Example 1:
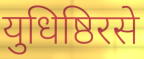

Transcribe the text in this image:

युधिष्ठिरसे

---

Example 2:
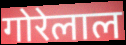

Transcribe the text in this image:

गोरेलाल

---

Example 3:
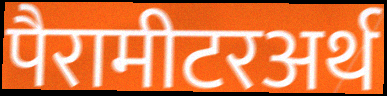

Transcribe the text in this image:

पैरामीटरअर्थ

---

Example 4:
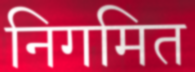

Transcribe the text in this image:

निगमित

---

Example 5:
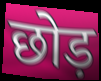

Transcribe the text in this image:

छोड़